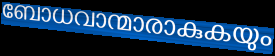
ബോധവാന്മാരാകുകയും